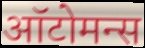
ऑटोमन्स